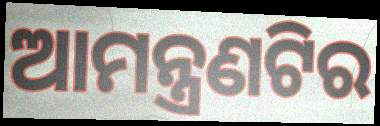
ଆମନ୍ତ୍ରଣଟିର